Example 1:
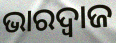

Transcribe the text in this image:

ଭାରଦ୍ୱାଜ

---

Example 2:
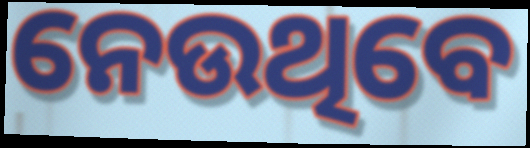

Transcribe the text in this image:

ନେଉଥିବେ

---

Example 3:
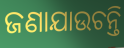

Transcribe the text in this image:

ଜଣାଯାଉଚନ୍ତି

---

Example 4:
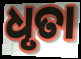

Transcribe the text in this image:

ଧୃତା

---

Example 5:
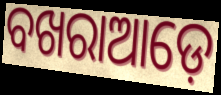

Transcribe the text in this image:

ବଖରାଆଡ଼େ